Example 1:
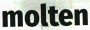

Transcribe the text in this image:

molten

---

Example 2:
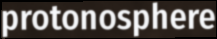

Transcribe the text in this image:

protonosphere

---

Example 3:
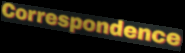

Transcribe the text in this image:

Correspondence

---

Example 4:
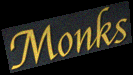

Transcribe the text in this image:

Monks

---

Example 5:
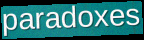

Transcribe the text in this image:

paradoxes